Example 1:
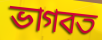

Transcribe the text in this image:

ভাগবত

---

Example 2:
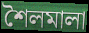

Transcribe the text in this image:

শৈলমালা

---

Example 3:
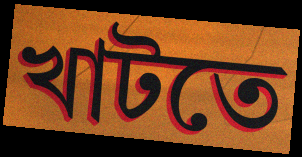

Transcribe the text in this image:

খাটতে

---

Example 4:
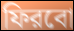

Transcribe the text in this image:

ফিরবো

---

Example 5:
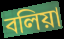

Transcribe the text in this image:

বলিয়া